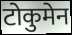
टोकुमेन